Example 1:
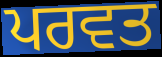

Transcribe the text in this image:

ਪਰਵਤ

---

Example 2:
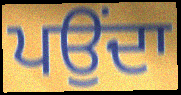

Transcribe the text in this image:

ਪਉਂਦਾ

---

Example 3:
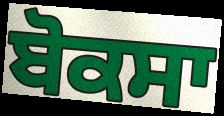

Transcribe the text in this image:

ਬੋਕਸਾ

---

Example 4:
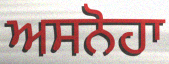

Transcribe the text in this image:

ਅਸਨੋਹਾ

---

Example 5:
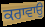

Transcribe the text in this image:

ਕਰਾਵਾਉ